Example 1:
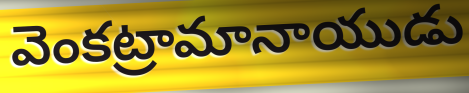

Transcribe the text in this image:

వెంకట్రామానాయుడు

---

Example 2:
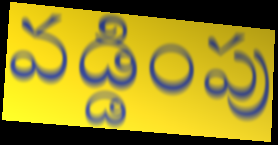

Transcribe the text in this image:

వడ్డింపు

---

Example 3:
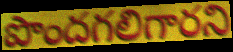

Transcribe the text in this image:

పొందగలిగారని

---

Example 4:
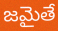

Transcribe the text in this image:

జమైతే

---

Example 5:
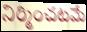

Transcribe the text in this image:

నిర్మించటమే